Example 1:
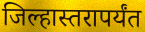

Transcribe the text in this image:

जिल्हास्तरापर्यंत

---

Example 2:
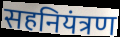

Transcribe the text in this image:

सहनियंत्रण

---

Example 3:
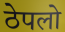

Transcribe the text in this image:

ठेपलो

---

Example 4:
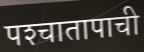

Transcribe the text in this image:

पश्चातापाची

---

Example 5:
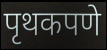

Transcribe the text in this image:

पृथकपणे